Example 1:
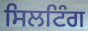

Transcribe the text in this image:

ਸਿਲਟਿੰਗ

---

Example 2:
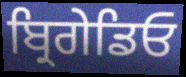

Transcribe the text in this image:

ਬ੍ਰਿਗੇਡਿਓ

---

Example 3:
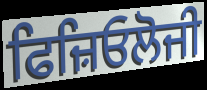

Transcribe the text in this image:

ਫਿਜ਼ਿਓਲੋਜੀ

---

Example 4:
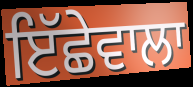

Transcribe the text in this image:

ਇੱਛੇਵਾਲਾ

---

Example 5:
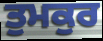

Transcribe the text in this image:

ਤੁਮਕੁਰ